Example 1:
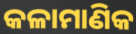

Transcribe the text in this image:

କଳାମାଣିକ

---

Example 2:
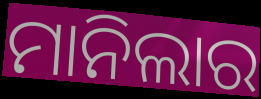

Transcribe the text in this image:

ମାନିଲାର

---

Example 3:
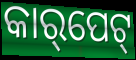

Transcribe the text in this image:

କାର୍‌ପେଟ୍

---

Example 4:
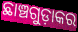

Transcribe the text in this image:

ଛାଞ୍ଚଗୁଡ଼ାକର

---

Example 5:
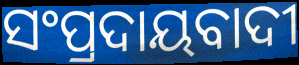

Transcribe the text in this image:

ସଂପ୍ରଦାୟବାଦୀ